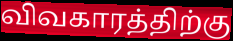
விவகாரத்திற்கு